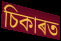
চিকাৰত